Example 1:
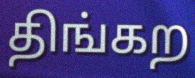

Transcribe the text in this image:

திங்கற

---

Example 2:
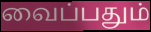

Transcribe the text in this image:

வைப்பதும்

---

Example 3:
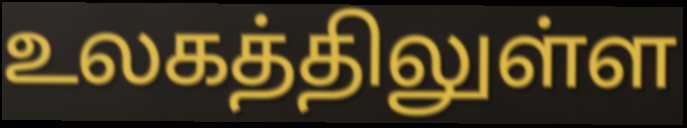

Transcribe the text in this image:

உலகத்திலுள்ள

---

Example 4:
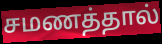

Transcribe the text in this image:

சமணத்தால்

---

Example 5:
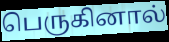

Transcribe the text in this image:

பெருகினால்